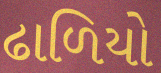
ઢાળિયો